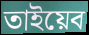
তাইয়েব